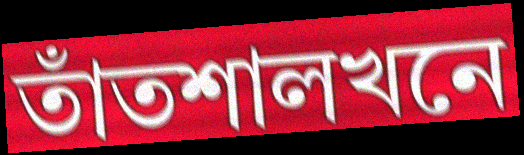
তাঁতশালখনে